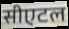
सीएटल